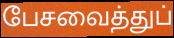
பேசவைத்துப்